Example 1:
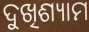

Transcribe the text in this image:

ଦୁଖିଶ୍ୟାମ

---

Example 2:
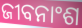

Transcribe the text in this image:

ଜୀବନାଂଶ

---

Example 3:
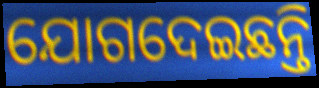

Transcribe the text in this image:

ଯୋଗଦେଇଛନ୍ତି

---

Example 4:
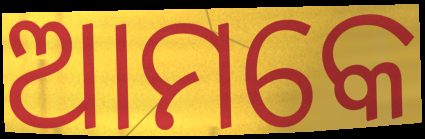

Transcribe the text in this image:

ଆମକେ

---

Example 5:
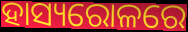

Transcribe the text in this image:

ହାସ୍ୟରୋଳରେ